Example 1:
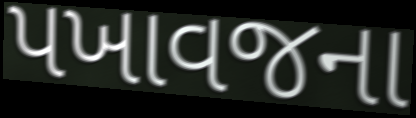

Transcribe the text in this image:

પખાવજના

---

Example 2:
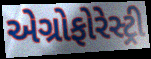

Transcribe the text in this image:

એગ્રોફોરેસ્ટ્રી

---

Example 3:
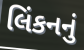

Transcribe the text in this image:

લિંકનનું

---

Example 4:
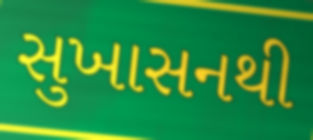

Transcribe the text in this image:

સુખાસનથી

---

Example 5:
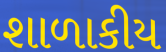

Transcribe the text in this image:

શાળાકીય